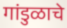
गांडुळाचे